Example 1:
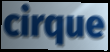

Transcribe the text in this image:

cirque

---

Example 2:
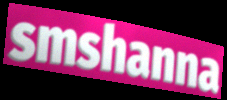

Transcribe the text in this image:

smshanna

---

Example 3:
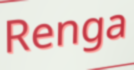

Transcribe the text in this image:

Renga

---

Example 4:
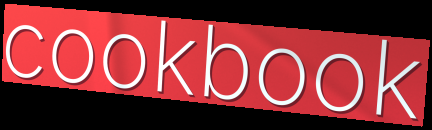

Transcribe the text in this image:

cookbook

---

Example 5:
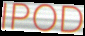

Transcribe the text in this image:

IPOD